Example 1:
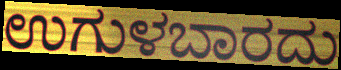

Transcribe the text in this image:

ಉಗುಳಬಾರದು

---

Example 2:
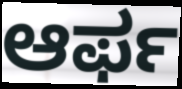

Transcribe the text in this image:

ಆರ್ಫ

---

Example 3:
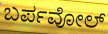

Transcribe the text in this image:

ಬರ್ಪವೋಲ್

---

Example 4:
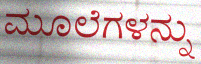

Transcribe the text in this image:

ಮೂಲೆಗಳನ್ನು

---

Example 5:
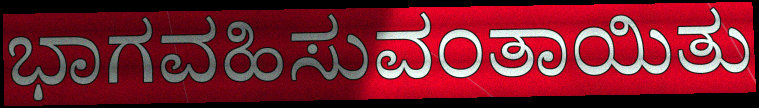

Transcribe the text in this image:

ಭಾಗವಹಿಸುವಂತಾಯಿತು